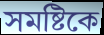
সমষ্টিকে